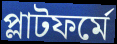
প্লাটফর্মে